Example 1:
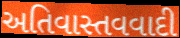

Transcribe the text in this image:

અતિવાસ્તવવાદી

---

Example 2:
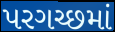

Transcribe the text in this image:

પરગચ્છમાં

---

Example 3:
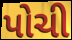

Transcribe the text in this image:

પોચી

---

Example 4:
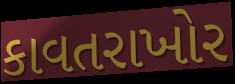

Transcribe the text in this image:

કાવતરાખોર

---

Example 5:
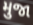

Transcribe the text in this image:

મુજા